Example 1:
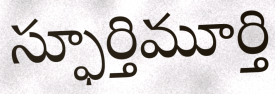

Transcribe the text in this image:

స్ఫూర్తిమూర్తి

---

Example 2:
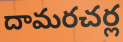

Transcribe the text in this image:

దామరచర్ల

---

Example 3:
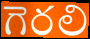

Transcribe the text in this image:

గెరలి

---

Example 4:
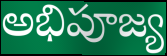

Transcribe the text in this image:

అభిపూజ్య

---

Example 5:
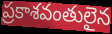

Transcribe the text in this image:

ప్రకాశవంతులైన